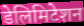
डेलिमिटेशन